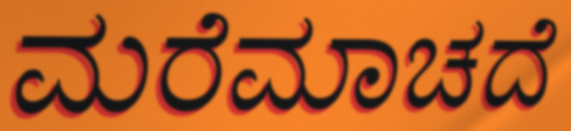
ಮರೆಮಾಚದೆ